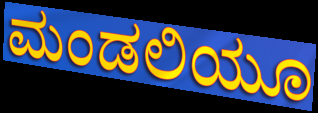
ಮಂಡಲಿಯೂ